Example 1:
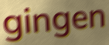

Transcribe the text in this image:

gingen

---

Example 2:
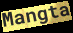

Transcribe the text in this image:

Mangta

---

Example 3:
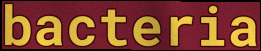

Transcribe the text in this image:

bacteria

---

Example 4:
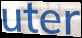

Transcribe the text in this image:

uter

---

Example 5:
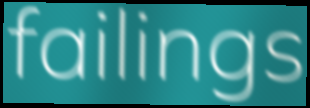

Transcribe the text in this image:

failings